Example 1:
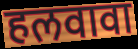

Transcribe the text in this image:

हलवावा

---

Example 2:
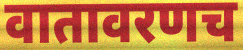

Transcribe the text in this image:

वातावरणच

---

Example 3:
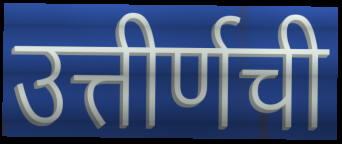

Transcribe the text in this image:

उत्तीर्णची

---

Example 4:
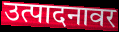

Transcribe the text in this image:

उत्पादनावर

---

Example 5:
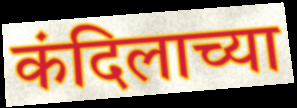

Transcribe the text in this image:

कंदिलाच्या